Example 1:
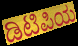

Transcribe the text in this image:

ಡಿಟಿಪಿಯ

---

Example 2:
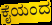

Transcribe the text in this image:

ಕೈಯಂದ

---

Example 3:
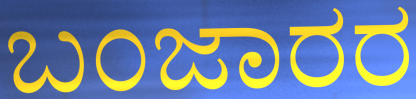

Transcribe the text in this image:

ಬಂಜಾರರ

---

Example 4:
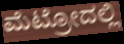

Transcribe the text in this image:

ಮೆಟ್ರೋದಲ್ಲಿ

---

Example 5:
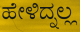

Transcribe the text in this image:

ಹೇಳಿದ್ನಲ್ಲ